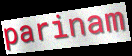
parinam